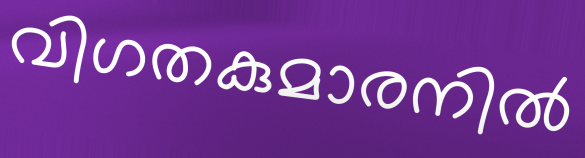
വിഗതകുമാരനിൽ